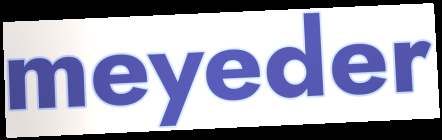
meyeder